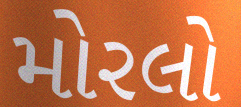
મોરલો